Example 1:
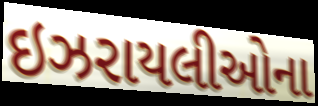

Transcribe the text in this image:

ઇઝરાયલીઓના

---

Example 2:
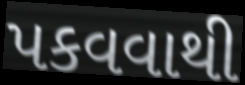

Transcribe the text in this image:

પકવવાથી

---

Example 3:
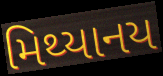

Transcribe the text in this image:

મિથ્યાનય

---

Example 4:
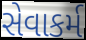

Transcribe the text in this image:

સેવાકર્મ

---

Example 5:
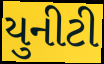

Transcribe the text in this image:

યુનીટી